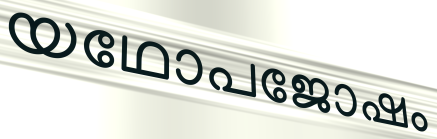
യഥോപജോഷം